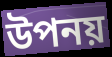
উপনয়